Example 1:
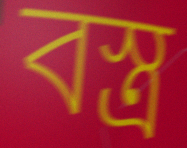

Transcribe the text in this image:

বস্ত্র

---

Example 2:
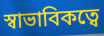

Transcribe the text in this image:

স্বাভাবিকত্বে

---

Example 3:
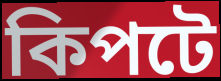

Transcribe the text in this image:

কিপটে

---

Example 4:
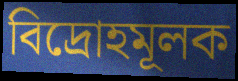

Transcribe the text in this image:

বিদ্রোহমূলক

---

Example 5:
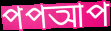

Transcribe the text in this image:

পপআপ